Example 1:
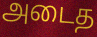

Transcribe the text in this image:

அடைத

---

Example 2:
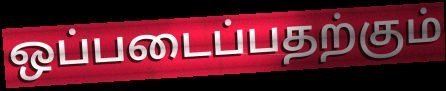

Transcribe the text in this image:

ஒப்படைப்பதற்கும்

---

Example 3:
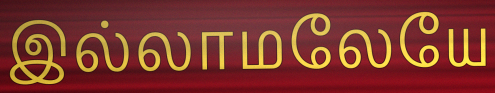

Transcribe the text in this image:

இல்லாமலேயே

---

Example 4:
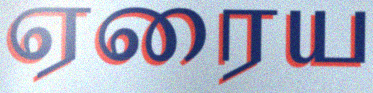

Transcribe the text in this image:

ஏரைய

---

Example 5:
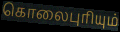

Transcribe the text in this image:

கொலைபுரியும்